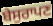
ਬੇਸੁਰਾਪਣ